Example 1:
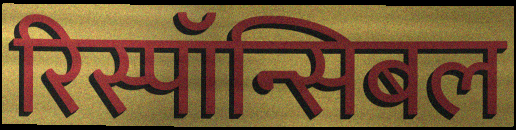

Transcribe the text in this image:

रिस्पॉन्सिबल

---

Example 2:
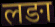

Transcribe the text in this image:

लङा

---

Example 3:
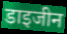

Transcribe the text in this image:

डाइजीन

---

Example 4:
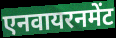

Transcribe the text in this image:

एनवायरनमेंट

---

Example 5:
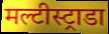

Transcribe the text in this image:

मल्टीस्ट्राडा